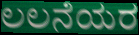
ಲಲನೆಯರ